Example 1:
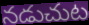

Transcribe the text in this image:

నడుచుట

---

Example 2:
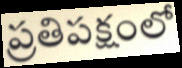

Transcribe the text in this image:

ప్రతిపక్షంలో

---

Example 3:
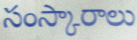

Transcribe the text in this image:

సంస్కారాలు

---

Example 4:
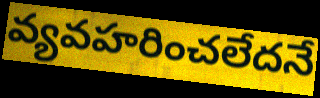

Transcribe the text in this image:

వ్యవహరించలేదనే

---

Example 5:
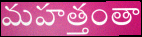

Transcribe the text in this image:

మహత్తంతా